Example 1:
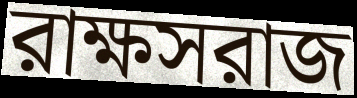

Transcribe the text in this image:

রাক্ষসরাজ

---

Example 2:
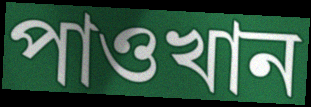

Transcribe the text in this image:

পাওখান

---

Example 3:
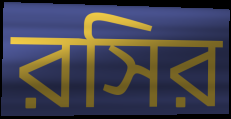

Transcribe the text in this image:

রসির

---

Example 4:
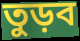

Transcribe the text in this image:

তুড়ব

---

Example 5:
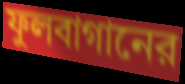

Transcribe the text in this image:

ফুলবাগানের